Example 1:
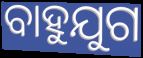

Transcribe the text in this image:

ବାହୁଯୁଗ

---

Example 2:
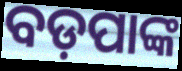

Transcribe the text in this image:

ବଡ଼ପାଙ୍କ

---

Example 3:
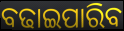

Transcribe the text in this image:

ବଢାଇପାରିବ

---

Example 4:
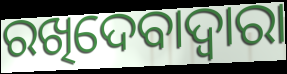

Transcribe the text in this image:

ରଖିଦେବାଦ୍ୱାରା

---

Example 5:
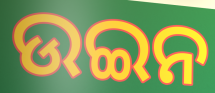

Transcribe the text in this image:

ଉଇନ